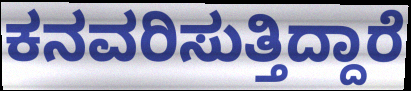
ಕನವರಿಸುತ್ತಿದ್ದಾರೆ